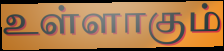
உள்ளாகும்